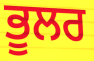
ਭੂਲਰ